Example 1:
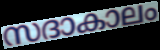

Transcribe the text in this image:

സദാകാലം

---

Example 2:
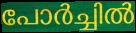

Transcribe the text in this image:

പോർച്ചിൽ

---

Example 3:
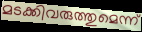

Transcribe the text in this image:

മടക്കിവരുത്തുമെന്ന്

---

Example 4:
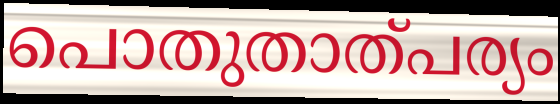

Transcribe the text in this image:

പൊതുതാത്പര്യം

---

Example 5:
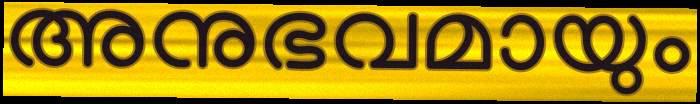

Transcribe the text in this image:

അനുഭവമായും